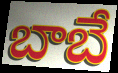
బాబే